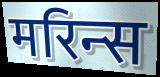
मरिन्स